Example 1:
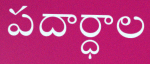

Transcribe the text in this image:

పదార్ధాల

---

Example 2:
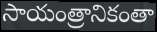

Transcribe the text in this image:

సాయంత్రానికంతా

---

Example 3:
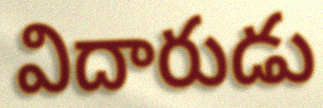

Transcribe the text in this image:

విదారుడు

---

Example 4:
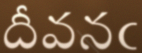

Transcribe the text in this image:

దీవనఁ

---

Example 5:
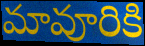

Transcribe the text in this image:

మావూరికి